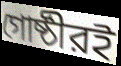
গোষ্ঠীরই